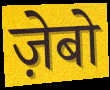
ज़ेबो